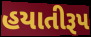
હયાતીરૂપ